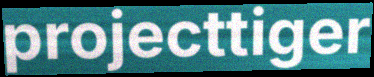
projecttiger